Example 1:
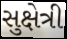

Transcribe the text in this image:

સુક્ષેત્રી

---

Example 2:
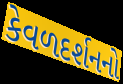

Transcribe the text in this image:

કેવળદર્શનનો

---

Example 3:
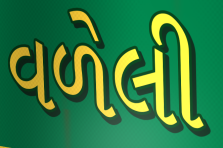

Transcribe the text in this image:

વળેલી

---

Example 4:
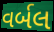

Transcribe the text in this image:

વર્બલ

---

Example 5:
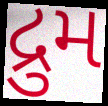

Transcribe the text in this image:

દ્રુમ